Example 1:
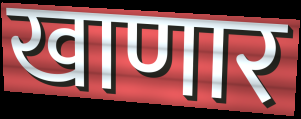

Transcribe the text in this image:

खाणार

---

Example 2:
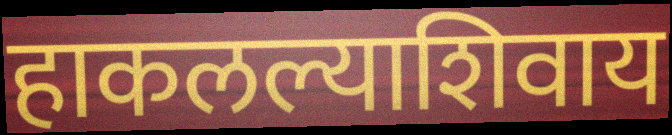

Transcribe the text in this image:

हाकलल्याशिवाय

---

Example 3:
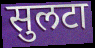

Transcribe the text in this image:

सुलटा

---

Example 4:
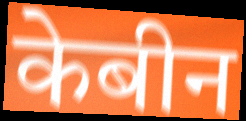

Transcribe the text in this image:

केबीन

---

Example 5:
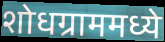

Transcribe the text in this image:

शोधग्राममध्ये